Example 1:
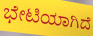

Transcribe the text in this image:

ಭೇಟಿಯಾಗಿದೆ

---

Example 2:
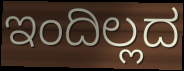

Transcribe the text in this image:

ಇಂದಿಲ್ಲದ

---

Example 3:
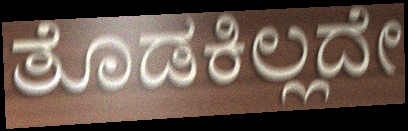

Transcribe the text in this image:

ತೊಡಕಿಲ್ಲದೇ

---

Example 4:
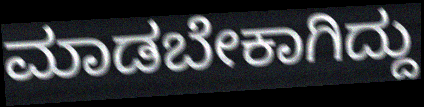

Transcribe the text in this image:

ಮಾಡಬೇಕಾಗಿದ್ದು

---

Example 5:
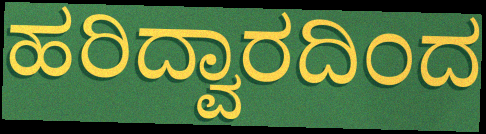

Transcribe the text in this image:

ಹರಿದ್ವಾರದಿಂದ